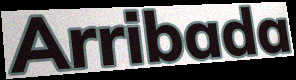
Arribada